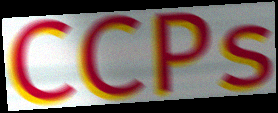
CCPs